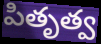
పితృత్వ